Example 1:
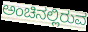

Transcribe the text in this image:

ಅಂಚಿನಲ್ಲಿರುವ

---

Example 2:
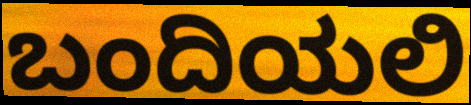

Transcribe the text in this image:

ಬಂದಿಯಲಿ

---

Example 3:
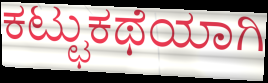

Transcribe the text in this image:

ಕಟ್ಟುಕಥೆಯಾಗಿ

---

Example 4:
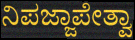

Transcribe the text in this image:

ನಿಪಜ್ಜಾಪೇತ್ವಾ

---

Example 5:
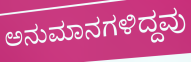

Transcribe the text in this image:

ಅನುಮಾನಗಳಿದ್ದವು